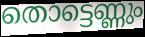
തൊട്ടെണ്ണും